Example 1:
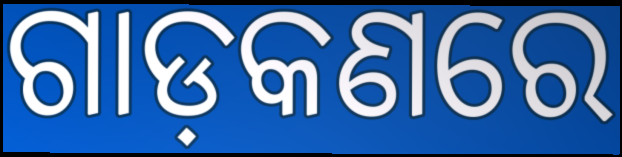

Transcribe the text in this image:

ଗାଡ଼କଣରେ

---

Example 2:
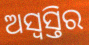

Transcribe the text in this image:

ଅସ୍ୱସ୍ତିର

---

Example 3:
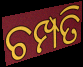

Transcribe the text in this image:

ଚମ୍ପତି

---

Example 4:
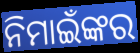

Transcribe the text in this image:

ନିମାଇଁଙ୍କର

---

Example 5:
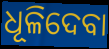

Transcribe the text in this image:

ଧୂଳିଦେବା